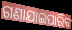
ଗଣାଯାଇପାରିବ